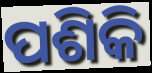
ପଶିକି